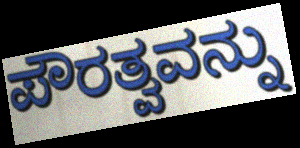
ಪೌರತ್ವವನ್ನು